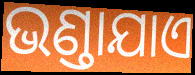
ଭଣ୍ଡାଯାଏ